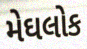
મેઘલોક